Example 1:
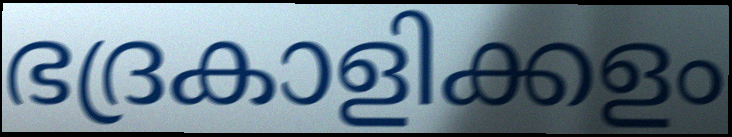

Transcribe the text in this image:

ഭദ്രകാളിക്കളം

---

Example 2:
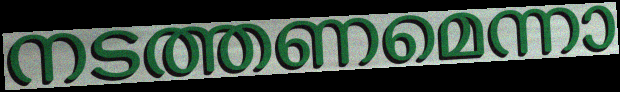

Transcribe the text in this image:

നടത്തണമെന്നാ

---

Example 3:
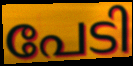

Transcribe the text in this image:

പേടി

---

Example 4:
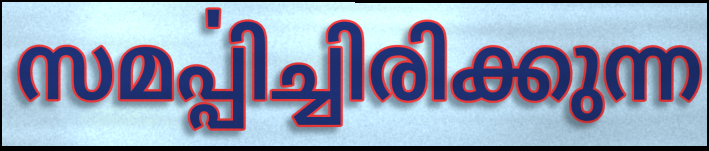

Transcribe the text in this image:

സമൎപ്പിച്ചിരിക്കുന്ന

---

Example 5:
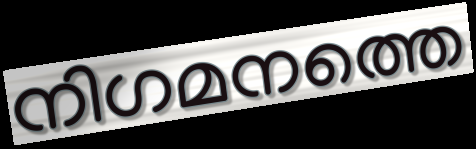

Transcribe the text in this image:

നിഗമനത്തെ